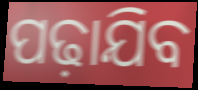
ପଢ଼ାଯିବ